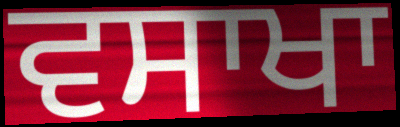
ਵਸਾਖਾ